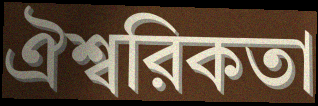
ঐশ্বরিকতা